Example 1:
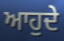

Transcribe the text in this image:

ਆਹੁਦੇ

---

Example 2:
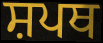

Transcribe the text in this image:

ਸ਼ਪਥ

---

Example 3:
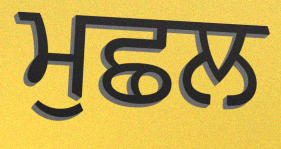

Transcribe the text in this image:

ਮੁਛਲ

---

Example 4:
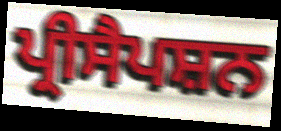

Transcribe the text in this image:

ਪ੍ਰੀਸੈਪਸ਼ਨ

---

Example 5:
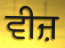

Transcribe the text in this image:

ਵੀਜ਼